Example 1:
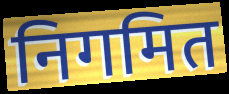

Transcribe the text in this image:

निगमित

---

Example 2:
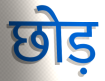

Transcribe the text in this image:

छोड़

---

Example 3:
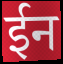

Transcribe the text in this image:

ईन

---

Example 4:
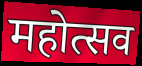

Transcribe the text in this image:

महोत्सव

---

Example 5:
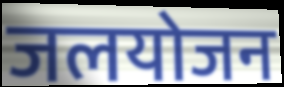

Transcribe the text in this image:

जलयोजन